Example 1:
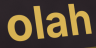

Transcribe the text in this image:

olah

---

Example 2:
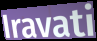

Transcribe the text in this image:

Iravati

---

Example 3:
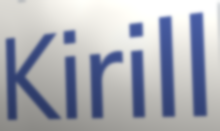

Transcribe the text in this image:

Kirill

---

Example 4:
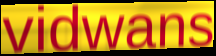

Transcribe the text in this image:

vidwans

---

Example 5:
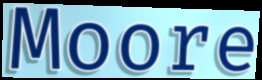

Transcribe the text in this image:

Moore